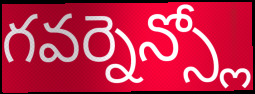
గవర్నెన్స్లో